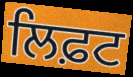
ਲਿਫ਼ਟ